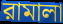
রামালা